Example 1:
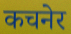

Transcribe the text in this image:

कचनेर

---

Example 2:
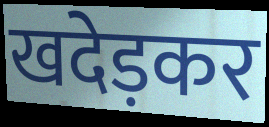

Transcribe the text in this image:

खदेड़कर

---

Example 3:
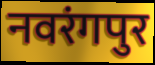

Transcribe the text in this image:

नवरंगपुर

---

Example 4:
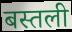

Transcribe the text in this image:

बस्तली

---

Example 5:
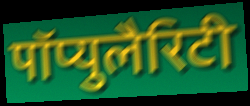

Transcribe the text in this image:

पॉप्युलैरिटी